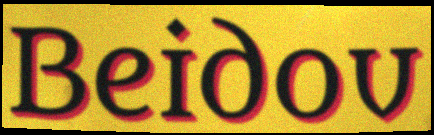
Beidou